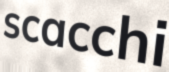
scacchi